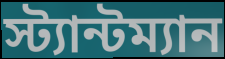
স্ট্যান্টম্যান